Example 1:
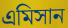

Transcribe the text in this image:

এমিসান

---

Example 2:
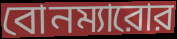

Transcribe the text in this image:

বোনম্যারোর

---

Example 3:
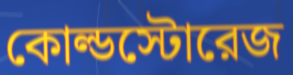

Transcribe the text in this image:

কোল্ডস্টোরেজ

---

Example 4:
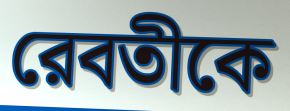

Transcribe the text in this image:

রেবতীকে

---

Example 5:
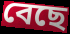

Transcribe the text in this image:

বেছে